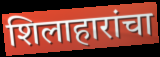
शिलाहारांचा